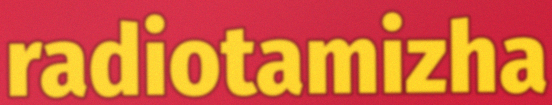
radiotamizha